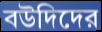
বউদিদের